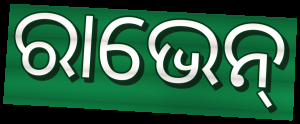
ରାଭେନ୍